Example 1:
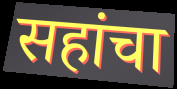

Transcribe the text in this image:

सहांचा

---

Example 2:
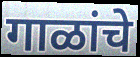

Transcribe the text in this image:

गाळांचे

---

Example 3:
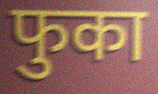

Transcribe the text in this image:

फुका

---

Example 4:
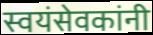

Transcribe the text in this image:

स्वयंसेवकांनी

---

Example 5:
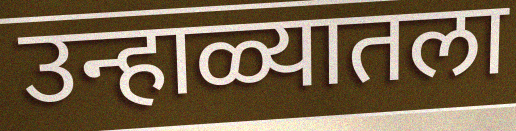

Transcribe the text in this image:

उन्हाळ्यातला